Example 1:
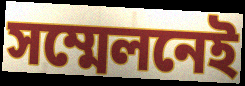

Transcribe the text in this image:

সম্মেলনেই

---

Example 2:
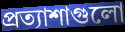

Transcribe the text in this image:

প্রত্যাশাগুলো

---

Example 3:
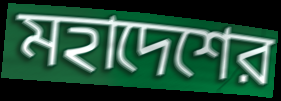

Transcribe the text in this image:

মহাদেশের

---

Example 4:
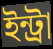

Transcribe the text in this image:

ইন্ট্রা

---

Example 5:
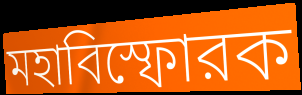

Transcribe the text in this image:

মহাবিস্ফোরক